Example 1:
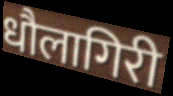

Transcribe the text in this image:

धौलागिरी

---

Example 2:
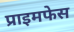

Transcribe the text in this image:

प्राइमफेस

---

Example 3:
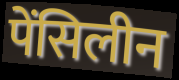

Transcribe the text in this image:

पेंसिलीन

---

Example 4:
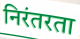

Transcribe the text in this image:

निरंतरता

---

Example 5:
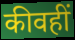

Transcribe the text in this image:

कीवहीं